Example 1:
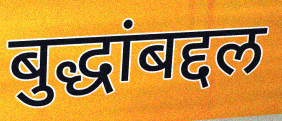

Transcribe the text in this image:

बुद्धांबद्दल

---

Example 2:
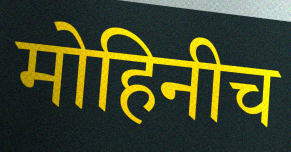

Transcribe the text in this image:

मोहिनीच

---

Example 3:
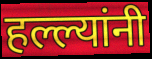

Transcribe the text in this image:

हल्ल्यांनी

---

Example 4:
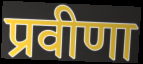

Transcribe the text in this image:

प्रवीणा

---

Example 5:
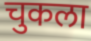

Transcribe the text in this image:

चुकला